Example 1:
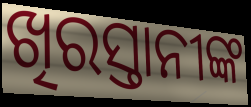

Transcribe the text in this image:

ଖିରସ୍ତାନୀଙ୍କ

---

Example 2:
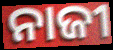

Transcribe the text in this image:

ନାଜୀ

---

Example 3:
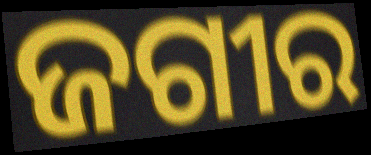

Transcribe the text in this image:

ଜଗୀର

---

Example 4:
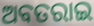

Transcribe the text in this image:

ଅବତରାଇ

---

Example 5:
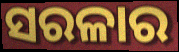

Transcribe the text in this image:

ସରଳାର